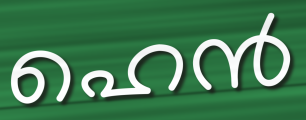
ഹെൻ